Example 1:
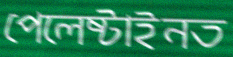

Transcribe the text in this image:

পেলেষ্টাইনত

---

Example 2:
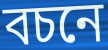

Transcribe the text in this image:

বচনে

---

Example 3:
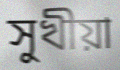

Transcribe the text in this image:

সুখীয়া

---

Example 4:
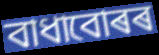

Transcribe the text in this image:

বাধাবোৰৰ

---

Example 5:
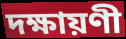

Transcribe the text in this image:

দক্ষায়ণী